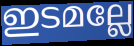
ഇടമല്ലേ